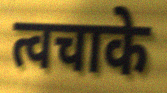
त्वचाके